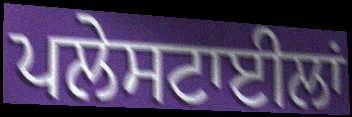
ਪਲੇਸਟਾਈਲਾਂ